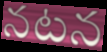
నటన